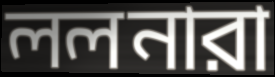
ললনারা